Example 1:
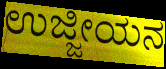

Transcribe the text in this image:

ಉಜ್ಜೀಯನ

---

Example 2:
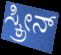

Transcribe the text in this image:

ಸ್ಕ್ರೀನ್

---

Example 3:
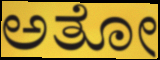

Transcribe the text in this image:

ಅತೋ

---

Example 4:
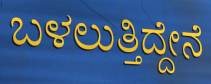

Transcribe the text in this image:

ಬಳಲುತ್ತಿದ್ದೇನೆ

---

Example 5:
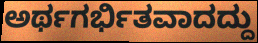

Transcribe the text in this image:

ಅರ್ಥಗರ್ಭಿತವಾದದ್ದು